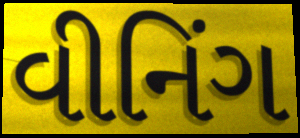
વીનિંગ